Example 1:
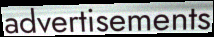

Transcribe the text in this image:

advertisements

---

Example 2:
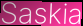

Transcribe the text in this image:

Saskia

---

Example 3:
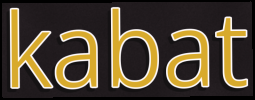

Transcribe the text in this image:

kabat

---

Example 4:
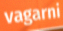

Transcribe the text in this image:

vagarni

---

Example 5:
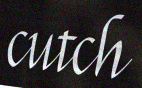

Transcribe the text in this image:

cutch